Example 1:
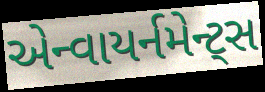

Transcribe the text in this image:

એન્વાયર્નમેન્ટ્સ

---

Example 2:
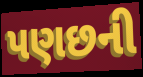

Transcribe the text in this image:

પણછની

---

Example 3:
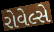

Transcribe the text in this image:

રોવેલ્સે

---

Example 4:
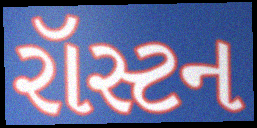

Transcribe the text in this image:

રૉસ્ટન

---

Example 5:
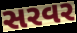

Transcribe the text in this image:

સરવર